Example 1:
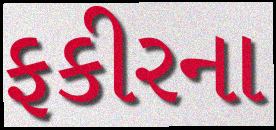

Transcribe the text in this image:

ફકીરના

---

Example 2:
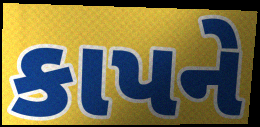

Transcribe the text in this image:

કાપને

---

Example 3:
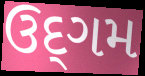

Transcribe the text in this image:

ઉદ્‌ગમ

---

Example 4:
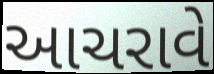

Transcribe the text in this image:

આચરાવે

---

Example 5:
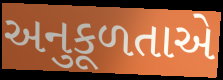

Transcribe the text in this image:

અનુકૂળતાએ